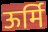
ऊर्मि